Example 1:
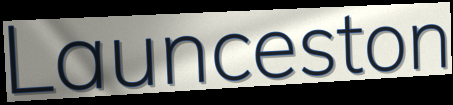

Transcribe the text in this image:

Launceston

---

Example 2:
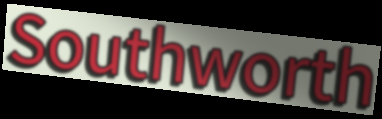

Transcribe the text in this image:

Southworth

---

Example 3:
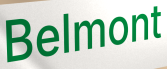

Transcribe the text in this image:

Belmont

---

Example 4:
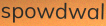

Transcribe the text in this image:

spowdwal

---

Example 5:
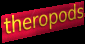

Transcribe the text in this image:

theropods